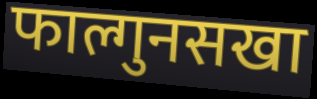
फाल्गुनसखा